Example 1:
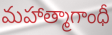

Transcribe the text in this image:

మహాత్మాగాంధీ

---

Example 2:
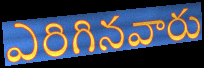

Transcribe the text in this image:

ఎరిగినవారు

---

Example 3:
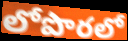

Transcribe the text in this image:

లోపొరలో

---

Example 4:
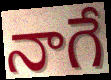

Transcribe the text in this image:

నాగే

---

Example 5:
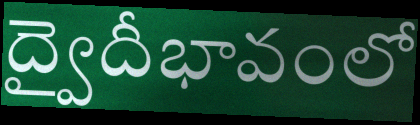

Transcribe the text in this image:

ద్వైదీభావంలో